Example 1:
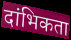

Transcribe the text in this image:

दांभिकता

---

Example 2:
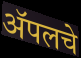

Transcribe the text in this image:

ॲपलचे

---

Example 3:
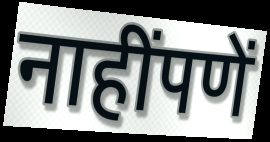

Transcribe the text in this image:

नाहींपणें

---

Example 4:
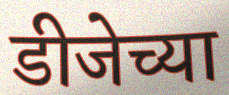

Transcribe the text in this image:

डीजेच्या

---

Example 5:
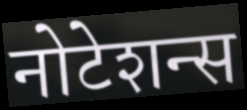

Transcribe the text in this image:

नोटेशन्स